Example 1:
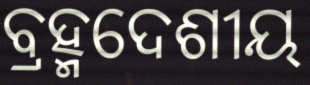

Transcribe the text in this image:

ବ୍ରହ୍ମଦେଶୀୟ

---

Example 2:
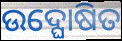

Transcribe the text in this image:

ଉଦ୍ଘୋଷିତ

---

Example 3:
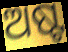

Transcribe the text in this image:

ଅଷ୍ଟ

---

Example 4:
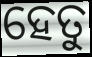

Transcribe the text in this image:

ହେତୁ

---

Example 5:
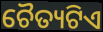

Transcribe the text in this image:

ଚୈତ୍ୟଟିଏ